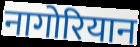
नागोरियान